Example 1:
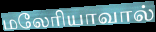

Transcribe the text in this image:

மலேரியாவால்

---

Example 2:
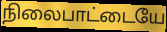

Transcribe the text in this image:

நிலைபாட்டையே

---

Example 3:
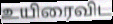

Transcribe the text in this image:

உயிரைவிட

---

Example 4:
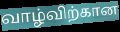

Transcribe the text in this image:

வாழ்விற்கான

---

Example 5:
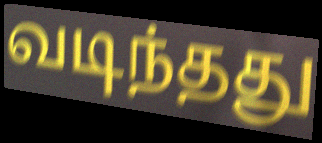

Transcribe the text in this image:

வடிந்தது